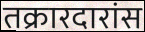
तक्रारदारांस